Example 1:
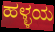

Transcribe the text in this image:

ಹಳ್ಳಯ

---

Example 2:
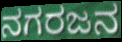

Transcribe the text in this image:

ನಗರಜನ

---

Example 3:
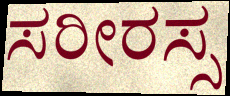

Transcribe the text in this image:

ಸರೀರಸ್ಸ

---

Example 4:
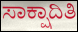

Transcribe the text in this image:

ಸಾಕ್ಷಾದಿತಿ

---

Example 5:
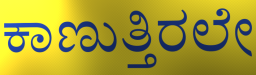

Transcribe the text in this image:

ಕಾಣುತ್ತಿರಲೇ